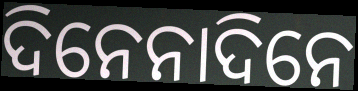
ଦିନେନାଦିନେ